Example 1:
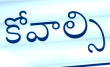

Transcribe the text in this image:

కోవాల్సి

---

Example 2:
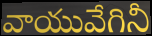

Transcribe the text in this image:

వాయువేగినీ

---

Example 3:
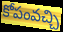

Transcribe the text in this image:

కోపంవచ్చి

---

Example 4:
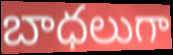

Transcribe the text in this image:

బాధలుగా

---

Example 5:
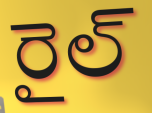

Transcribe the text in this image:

రైల్